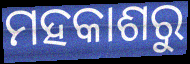
ମହକାଶରୁ